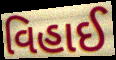
વિહાઈ